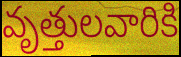
వృత్తులవారికి